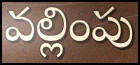
వల్లింపు